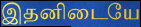
இதனிடையே